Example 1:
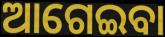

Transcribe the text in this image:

ଆଗେଇବା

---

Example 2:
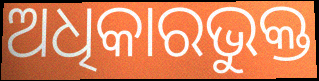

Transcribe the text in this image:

ଅଧିକାରଭୁକ୍ତ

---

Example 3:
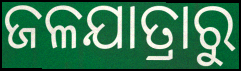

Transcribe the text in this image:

ଜଳଯାତ୍ରାରୁ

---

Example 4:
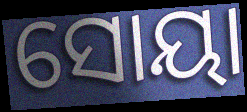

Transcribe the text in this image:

ସୋୟା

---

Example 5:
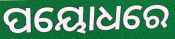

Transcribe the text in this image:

ପୟୋଧରେ